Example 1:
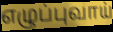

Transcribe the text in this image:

எழுப்புவாய்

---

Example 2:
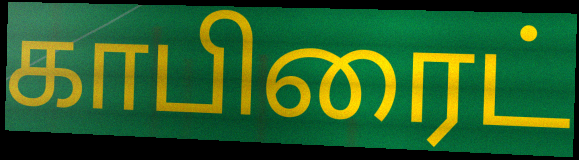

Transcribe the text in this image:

காபிரைட்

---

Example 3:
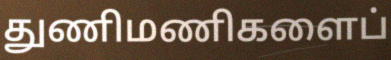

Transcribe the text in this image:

துணிமணிகளைப்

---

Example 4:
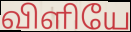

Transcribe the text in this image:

விளியே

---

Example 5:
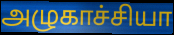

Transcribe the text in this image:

அழுகாச்சியா